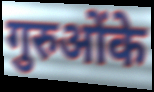
गुरुओंके